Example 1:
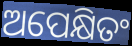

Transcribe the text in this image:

ଅପେକ୍ଷିତଂ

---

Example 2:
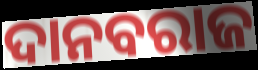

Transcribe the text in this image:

ଦାନବରାଜ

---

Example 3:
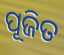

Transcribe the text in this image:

ପୂଜିତ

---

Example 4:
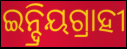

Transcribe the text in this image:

ଇନ୍ଦ୍ରିୟଗ୍ରାହୀ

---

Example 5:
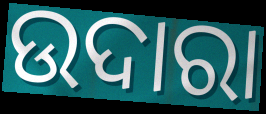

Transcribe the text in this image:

ଉଦାରା